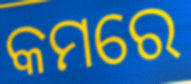
କମରେ